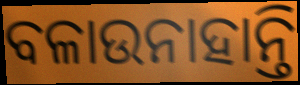
ବଳାଉନାହାନ୍ତି